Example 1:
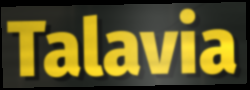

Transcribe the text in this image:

Talavia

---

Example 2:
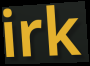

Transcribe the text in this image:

irk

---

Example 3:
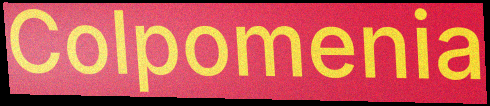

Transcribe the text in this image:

Colpomenia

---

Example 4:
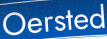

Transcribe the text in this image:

Oersted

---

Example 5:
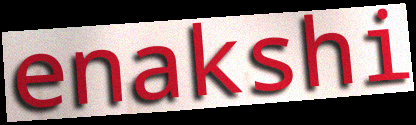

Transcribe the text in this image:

enakshi